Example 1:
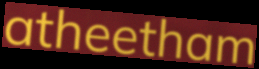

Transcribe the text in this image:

atheetham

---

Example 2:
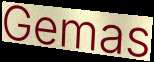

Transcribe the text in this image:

Gemas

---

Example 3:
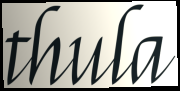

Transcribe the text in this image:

thula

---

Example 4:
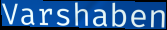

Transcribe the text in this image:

Varshaben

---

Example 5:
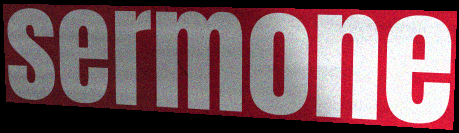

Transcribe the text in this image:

sermone